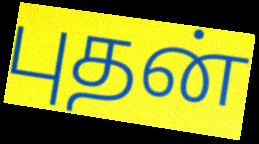
புதன்